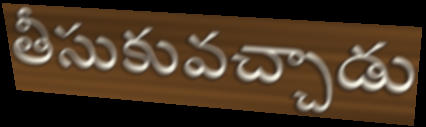
తీసుకువచ్చాడు